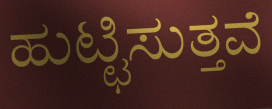
ಹುಟ್ಟಿಸುತ್ತವೆ